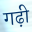
गढ़ी